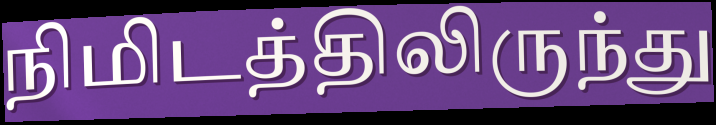
நிமிடத்திலிருந்து